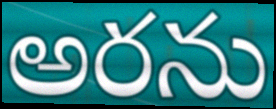
అరను